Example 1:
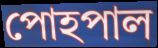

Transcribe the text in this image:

পোহপাল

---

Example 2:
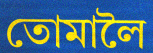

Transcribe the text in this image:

তোমালৈ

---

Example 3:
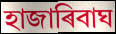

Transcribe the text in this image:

হাজাৰিবাঘ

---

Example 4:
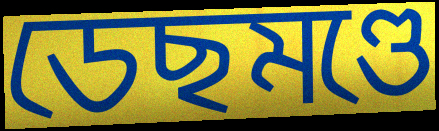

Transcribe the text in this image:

ডেছমণ্ডে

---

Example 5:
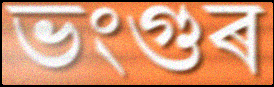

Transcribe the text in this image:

ভংগুৰ